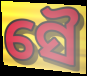
ସୈ